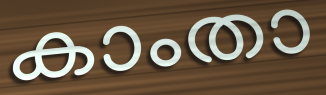
കാംതാ